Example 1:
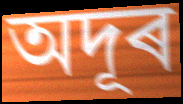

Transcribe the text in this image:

অদূৰ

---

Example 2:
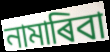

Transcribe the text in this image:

নামাৰিবা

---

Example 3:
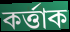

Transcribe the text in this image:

কৰ্ত্তাক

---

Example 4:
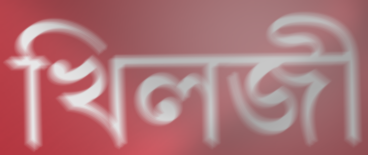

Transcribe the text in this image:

খিলজী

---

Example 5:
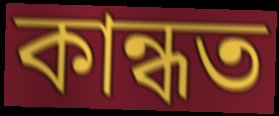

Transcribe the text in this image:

কান্ধত